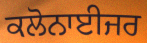
ਕਲੋਨਾਈਜਰ